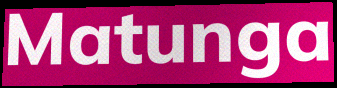
Matunga